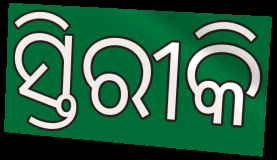
ସ୍ତିରୀକି